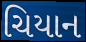
ચિયાન